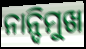
ନାନ୍ଦିମୁଖ